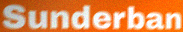
Sunderban